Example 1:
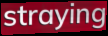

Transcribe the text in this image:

straying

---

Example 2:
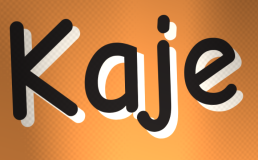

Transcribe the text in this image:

Kaje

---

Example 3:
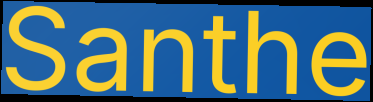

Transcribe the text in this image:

Santhe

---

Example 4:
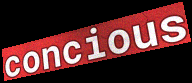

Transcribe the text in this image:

concious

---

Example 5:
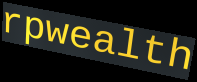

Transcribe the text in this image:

rpwealth